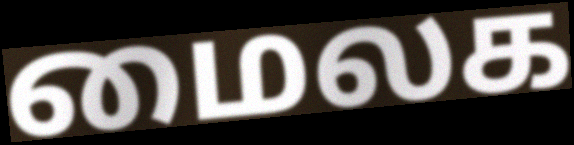
மைலக